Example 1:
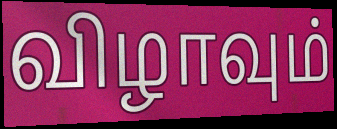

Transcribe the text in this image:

விழாவும்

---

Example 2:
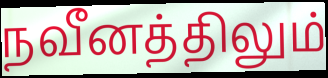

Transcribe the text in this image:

நவீனத்திலும்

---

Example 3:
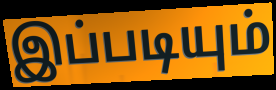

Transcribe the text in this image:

இப்படியும்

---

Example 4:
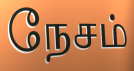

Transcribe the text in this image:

நேசம்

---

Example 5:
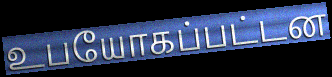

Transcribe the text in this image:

உபயோகப்பட்டன